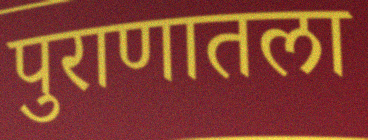
पुराणातला